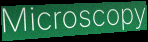
Microscopy